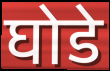
घोडे